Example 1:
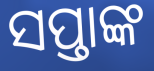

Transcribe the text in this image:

ସପ୍ତାଙ୍କ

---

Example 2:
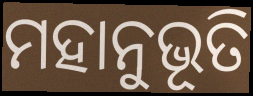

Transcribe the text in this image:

ମହାନୁଭୂତି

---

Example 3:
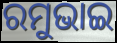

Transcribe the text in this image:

ରମୁଭାଇ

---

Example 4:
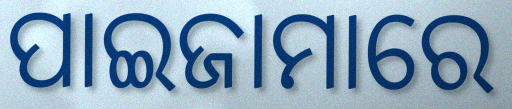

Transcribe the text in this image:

ପାଇଜାମାରେ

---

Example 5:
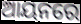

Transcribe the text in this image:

ଆୟନରେ